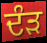
ਦੰੜ